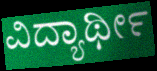
ವಿದ್ಯಾರ್ಥೀ